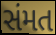
સંમત